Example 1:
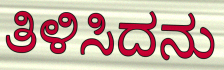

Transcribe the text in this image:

ತಿಳಿಸಿದನು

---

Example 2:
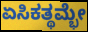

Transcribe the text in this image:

ಏಸಿಕತ್ಥಮ್ಭೇ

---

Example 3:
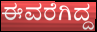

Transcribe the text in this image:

ಈವರೆಗಿದ್ದ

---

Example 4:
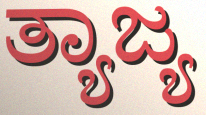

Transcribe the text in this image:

ತ್ಯಾಜ್ಯ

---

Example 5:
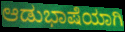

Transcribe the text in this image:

ಆಡುಭಾಷೆಯಾಗಿ